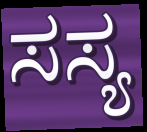
ಸಸ್ಯ